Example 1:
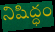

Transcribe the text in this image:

నిషిద్ధం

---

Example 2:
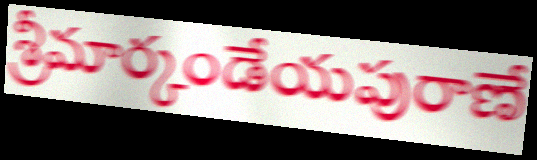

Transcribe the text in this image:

శ్రీమార్కండేయపురాణే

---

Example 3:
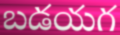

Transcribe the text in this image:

బడయగ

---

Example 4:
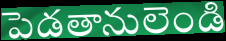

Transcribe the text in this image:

పెడతానులెండి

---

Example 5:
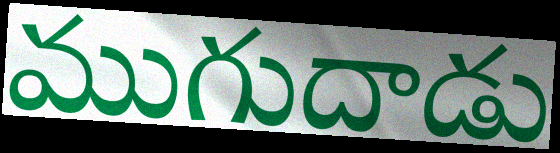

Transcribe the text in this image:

ముగుదాడు